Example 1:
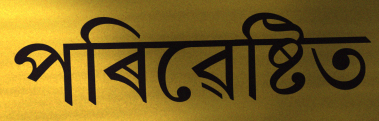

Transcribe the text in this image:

পৰিৱেষ্টিত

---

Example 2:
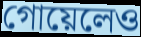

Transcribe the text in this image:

গোয়েলেও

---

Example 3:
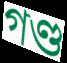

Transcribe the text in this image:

গণ্ড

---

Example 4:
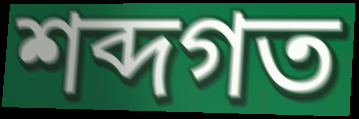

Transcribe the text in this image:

শব্দগত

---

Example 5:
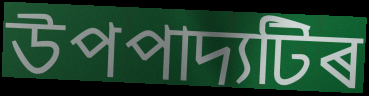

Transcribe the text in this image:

উপপাদ্যটিৰ